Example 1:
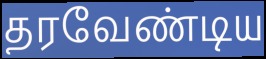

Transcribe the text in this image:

தரவேண்டிய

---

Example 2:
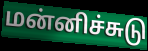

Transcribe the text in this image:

மன்னிச்சுடு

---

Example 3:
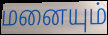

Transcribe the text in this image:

மனையும்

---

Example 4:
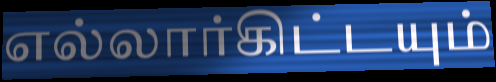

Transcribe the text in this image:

எல்லார்கிட்டயும்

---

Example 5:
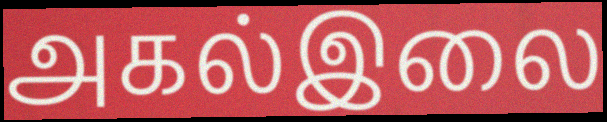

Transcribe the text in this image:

அகல்இலை